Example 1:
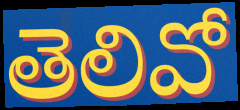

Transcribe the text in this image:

తెలివో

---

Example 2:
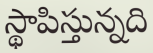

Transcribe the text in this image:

స్థాపిస్తున్నది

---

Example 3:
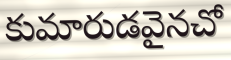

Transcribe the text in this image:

కుమారుడవైనచో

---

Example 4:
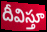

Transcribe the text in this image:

దీవిస్తూ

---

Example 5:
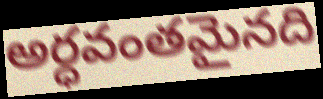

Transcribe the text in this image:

అర్ధవంతమైనది